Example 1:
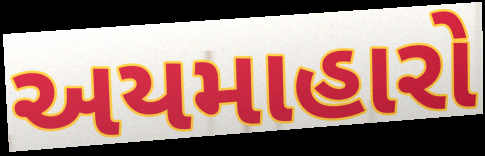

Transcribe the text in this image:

અયમાહારો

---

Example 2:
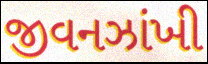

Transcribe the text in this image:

જીવનઝાંખી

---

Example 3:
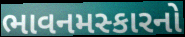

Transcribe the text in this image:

ભાવનમસ્કારનો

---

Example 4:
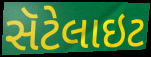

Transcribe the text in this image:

સૅટેલાઇટ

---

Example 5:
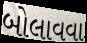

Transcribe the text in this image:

બોલાવવા